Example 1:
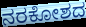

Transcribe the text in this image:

ನರಕೋಶದ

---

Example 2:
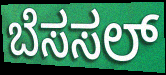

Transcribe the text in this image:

ಬೆಸಸಲ್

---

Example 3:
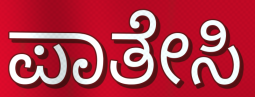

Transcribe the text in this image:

ಪಾತೇಸಿ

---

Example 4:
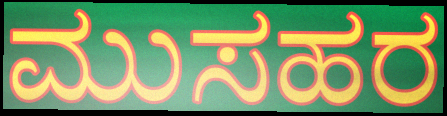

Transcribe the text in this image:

ಮುಸಹರ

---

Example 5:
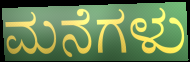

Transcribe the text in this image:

ಮನೆಗಳು